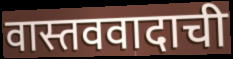
वास्तववादाची